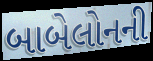
બાબેલોનની